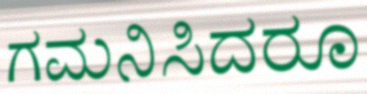
ಗಮನಿಸಿದರೂ